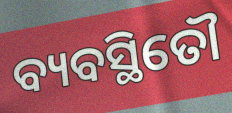
ବ୍ୟବସ୍ଥିତୌ